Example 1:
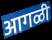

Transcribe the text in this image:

आगळी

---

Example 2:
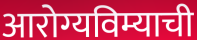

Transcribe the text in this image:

आरोग्यविम्याची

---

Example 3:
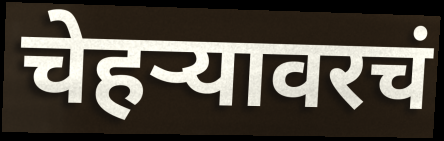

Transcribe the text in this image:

चेहऱ्यावरचं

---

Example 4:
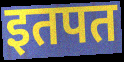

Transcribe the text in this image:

इतपत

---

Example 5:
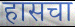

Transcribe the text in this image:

हासचा